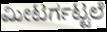
ಮೀಟರ್ಗಟ್ಟಲೆ